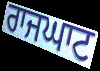
ਰਾਜਘਾਟ